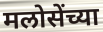
मलोसेंच्या